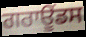
ਗਰਾਊਂਡਸ